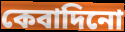
কেবাদিনো